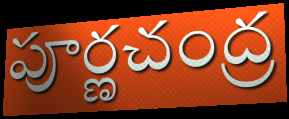
పూర్ణచంద్ర